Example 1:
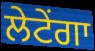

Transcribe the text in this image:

ਲੇਟੇਂਗਾ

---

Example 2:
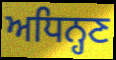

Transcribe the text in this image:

ਅਧਿਨ੍ਹਣ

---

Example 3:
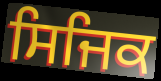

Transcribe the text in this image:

ਸਿਜਿਕ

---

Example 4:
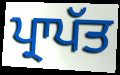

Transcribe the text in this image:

ਪ੍ਰਾਪੱਤ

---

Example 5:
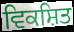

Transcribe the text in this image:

ਵਿਕਸ਼ਿਤ